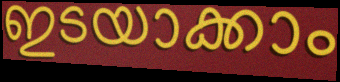
ഇടയാക്കാം